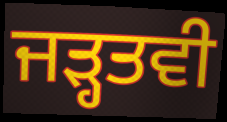
ਜੜ੍ਹਤਵੀ